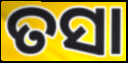
ତସା